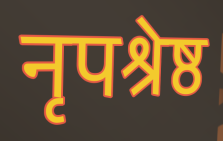
नृपश्रेष्ठ